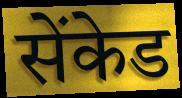
सेंकेड